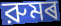
ৰুমৰ